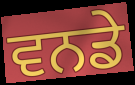
ਵਨਡੇ